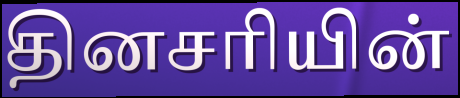
தினசரியின்